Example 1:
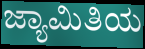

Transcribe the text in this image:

ಜ್ಯಾಮಿತಿಯ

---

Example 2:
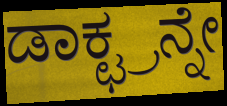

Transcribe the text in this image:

ಡಾಕ್ಟ್ರನ್ನೇ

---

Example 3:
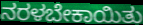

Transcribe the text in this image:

ನರಳಬೇಕಾಯಿತು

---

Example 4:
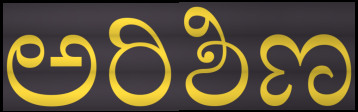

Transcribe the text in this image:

ಅರಿಶಿಣ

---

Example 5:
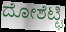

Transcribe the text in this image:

ದೋಶೆಟ್ಟಿ